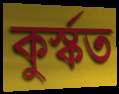
কুৰ্স্কত